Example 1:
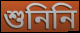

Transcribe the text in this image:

শুনিনি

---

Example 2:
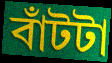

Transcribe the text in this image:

বাঁটটা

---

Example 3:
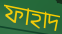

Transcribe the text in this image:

ফাহাদ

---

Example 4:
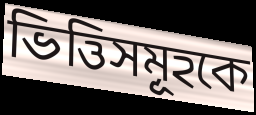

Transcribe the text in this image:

ভিত্তিসমূহকে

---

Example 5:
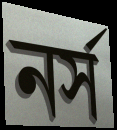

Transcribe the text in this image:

নর্স